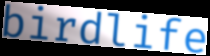
birdlife